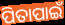
ପିତାପାଇଁ